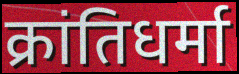
क्रांतिधर्मा